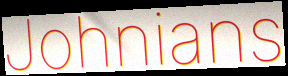
Johnians